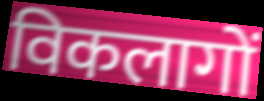
विकलागों